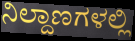
ನಿಲ್ದಾಣಗಳಲ್ಲಿ